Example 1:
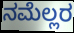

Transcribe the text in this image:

ನಮೆಲ್ಲರ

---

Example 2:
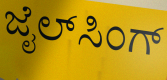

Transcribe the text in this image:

ಜೈಲ್‌ಸಿಂಗ್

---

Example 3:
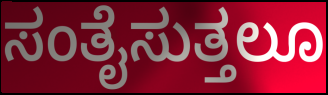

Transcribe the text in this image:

ಸಂತೈಸುತ್ತಲೂ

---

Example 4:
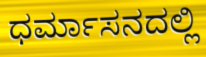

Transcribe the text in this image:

ಧರ್ಮಾಸನದಲ್ಲಿ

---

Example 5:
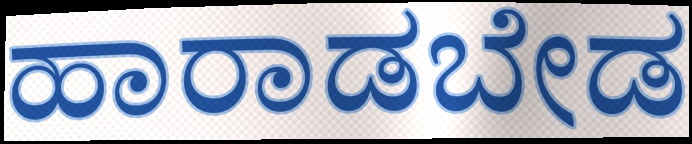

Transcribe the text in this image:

ಹಾರಾಡಬೇಡ